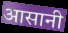
आसानी